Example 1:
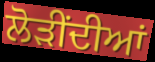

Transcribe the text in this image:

ਲੋੜੀਂਦੀਆਂ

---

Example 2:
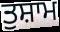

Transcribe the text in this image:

ਤੁਸ਼ਾਮ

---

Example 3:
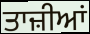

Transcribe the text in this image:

ਤਾਜ਼ੀਆਂ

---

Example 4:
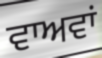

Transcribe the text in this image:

ਵਾਅਵਾਂ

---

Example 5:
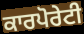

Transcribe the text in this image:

ਕਾਰਪੋਰੇਟੀ